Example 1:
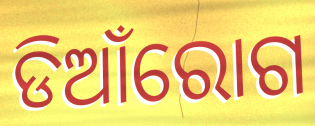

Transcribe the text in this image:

ଡିଆଁରୋଗ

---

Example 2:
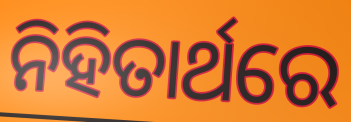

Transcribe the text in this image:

ନିହିତାର୍ଥରେ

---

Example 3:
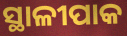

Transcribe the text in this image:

ସ୍ଥାଳୀପାକ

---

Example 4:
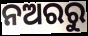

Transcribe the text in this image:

ନଅରରୁ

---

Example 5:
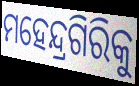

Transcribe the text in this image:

ମହେନ୍ଦ୍ରଗିରିକୁ